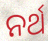
ନର୍ଥ